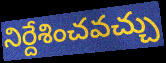
నిర్దేశించవచ్చు